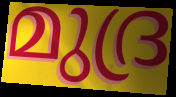
മുദ്ര